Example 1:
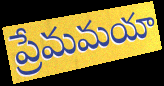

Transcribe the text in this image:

ప్రేమమయా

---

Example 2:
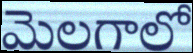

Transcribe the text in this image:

మెలగాలో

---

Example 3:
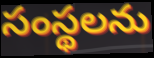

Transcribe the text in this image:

సంస్థలను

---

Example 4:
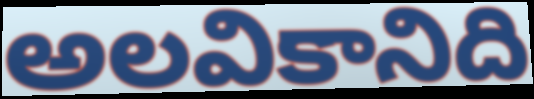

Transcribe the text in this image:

అలవికానిది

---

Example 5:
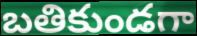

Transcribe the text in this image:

బతికుండగా